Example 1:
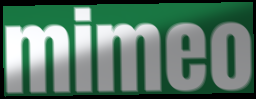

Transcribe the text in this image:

mimeo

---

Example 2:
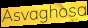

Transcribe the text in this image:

Asvaghosa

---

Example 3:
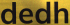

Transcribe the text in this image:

dedh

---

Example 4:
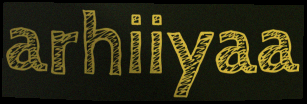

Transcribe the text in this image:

arhiiyaa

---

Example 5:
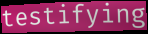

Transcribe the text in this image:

testifying